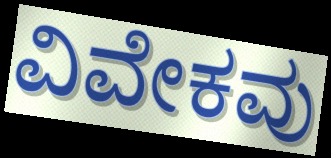
ವಿವೇಕವು